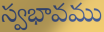
స్వభావము